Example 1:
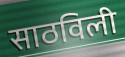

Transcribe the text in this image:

साठविली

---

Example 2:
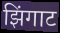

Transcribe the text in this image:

झिंगाट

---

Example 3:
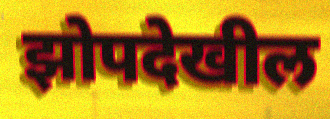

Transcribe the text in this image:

झोपदेखील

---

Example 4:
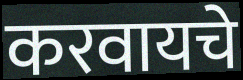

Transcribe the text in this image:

करवायचे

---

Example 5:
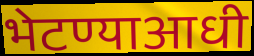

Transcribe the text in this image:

भेटण्याआधी